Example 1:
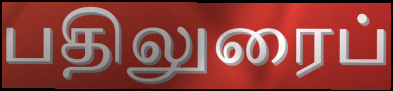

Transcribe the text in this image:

பதிலுரைப்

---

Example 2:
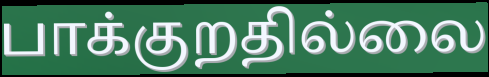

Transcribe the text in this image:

பாக்குறதில்லை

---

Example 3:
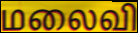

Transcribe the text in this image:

மலைவி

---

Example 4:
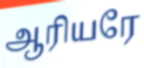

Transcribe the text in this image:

ஆரியரே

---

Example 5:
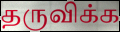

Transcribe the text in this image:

தருவிக்க